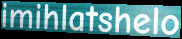
imihlatshelo